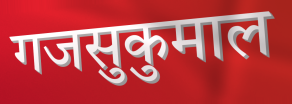
गजसुकुमाल